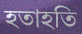
হতাহতি